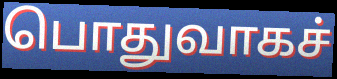
பொதுவாகச்